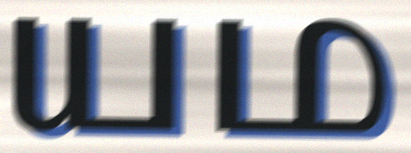
யம